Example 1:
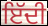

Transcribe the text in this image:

ਇੱਦੀ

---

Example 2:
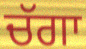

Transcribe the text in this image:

ਚੱਗਾ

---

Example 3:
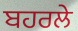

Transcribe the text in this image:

ਬਹਰਲੇ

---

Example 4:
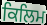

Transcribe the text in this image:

ਕਿਲਿਮ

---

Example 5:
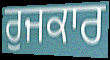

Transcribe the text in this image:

ਰੁਜਕਾਰ